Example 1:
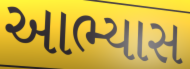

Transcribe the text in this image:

આભ્યાસ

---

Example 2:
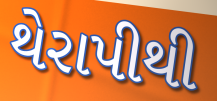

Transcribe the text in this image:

થેરાપીથી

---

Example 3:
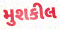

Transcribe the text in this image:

મુશકીલ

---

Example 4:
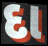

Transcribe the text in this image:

દા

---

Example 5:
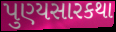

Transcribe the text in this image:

પુણ્યસારકથા